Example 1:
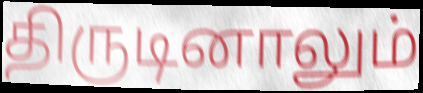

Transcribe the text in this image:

திருடினாலும்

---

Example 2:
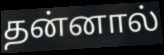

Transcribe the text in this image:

தன்னால்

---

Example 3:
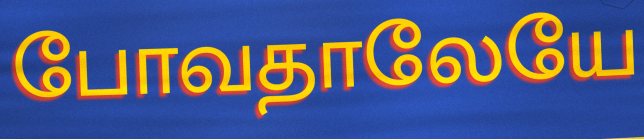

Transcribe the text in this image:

போவதாலேயே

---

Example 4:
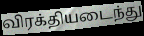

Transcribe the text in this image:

விரக்தியடைந்து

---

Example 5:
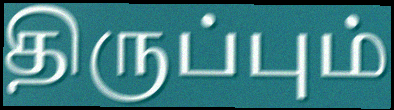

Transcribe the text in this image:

திருப்பும்